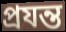
প্রযন্ত